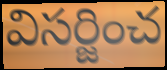
విసర్జించ